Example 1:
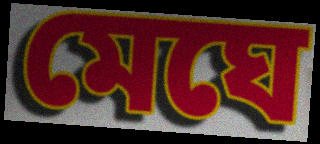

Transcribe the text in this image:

মেঘে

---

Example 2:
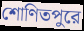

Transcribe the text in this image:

শোণিতপুরে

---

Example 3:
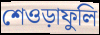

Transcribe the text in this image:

শেওড়াফুলি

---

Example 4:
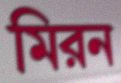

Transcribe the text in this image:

মিরন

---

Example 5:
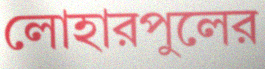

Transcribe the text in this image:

লোহারপুলের